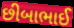
છીબાભાઈ